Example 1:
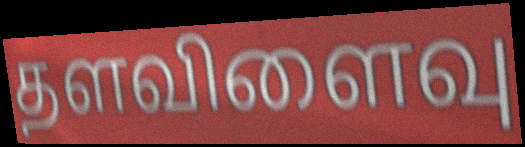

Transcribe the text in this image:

தளவிளைவு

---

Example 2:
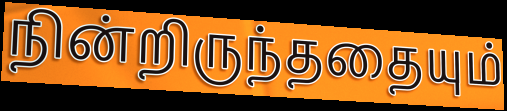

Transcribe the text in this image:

நின்றிருந்ததையும்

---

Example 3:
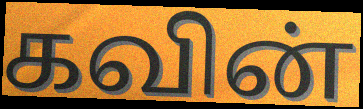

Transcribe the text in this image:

கவின்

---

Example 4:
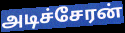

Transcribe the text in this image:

அடிச்சேரன்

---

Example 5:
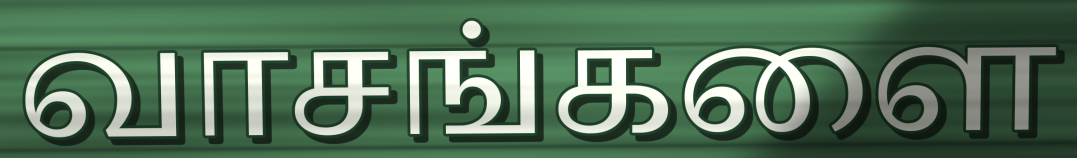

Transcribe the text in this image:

வாசங்களை